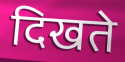
दिखते